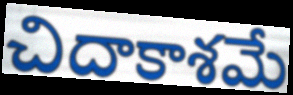
చిదాకాశమే